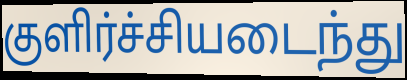
குளிர்ச்சியடைந்து